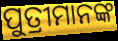
ପୁତ୍ରୀମାନଙ୍କ